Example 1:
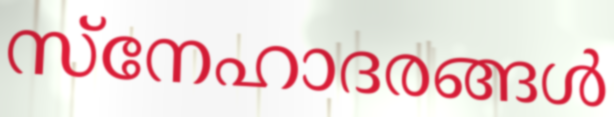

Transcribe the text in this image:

സ്നേഹാദരങ്ങൾ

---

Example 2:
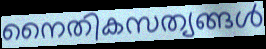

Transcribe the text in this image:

നൈതികസത്യങ്ങൾ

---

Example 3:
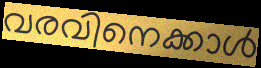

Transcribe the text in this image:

വരവിനെക്കാൾ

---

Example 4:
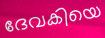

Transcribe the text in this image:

ദേവകിയെ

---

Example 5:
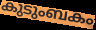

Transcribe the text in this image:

കുടുംബകം